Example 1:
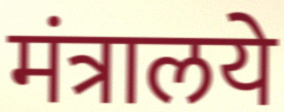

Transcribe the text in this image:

मंत्रालये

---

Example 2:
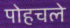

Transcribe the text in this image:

पोहचले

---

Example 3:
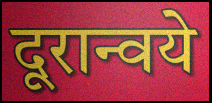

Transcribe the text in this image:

दूरान्वये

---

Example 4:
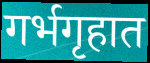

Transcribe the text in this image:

गर्भगृहात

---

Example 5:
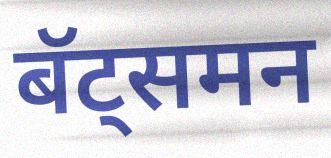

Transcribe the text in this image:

बॅट्समन